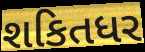
શકિતધર